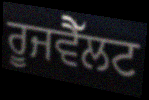
ਰੂਜਵੈੱਲਟ